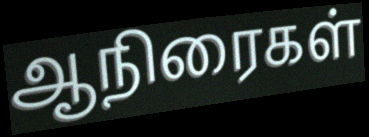
ஆநிரைகள்